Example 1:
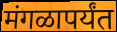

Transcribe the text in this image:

मंगळापर्यंत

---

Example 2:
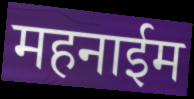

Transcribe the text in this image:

महनाईम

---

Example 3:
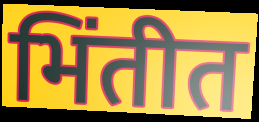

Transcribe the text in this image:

भिंतीत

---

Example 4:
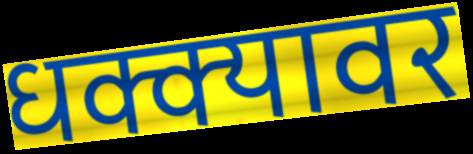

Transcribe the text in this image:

धक्क्यावर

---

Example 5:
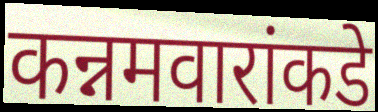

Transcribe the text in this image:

कन्नमवारांकडे